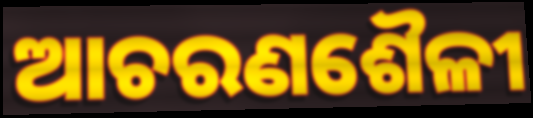
ଆଚରଣଶୈଳୀ